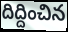
దిద్దించిన